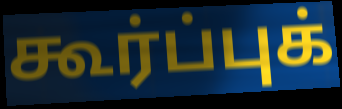
கூர்ப்புக்